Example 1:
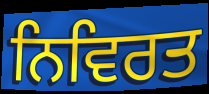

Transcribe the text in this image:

ਨਿਵਿਰਤ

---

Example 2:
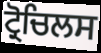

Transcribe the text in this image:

ਟ੍ਰੋਚਿਲਸ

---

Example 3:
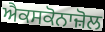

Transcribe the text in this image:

ਐਕਸਕੋਨਾਜ਼ੋਲ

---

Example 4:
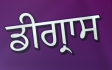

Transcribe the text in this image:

ਡੀਗ੍ਰਾਸ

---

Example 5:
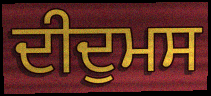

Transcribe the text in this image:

ਦੀਦੁਮਸ